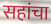
सहांचा